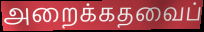
அறைக்கதவைப்